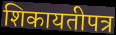
शिकायतीपत्र